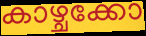
കാഴ്ചക്കോ